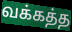
வக்கத்த